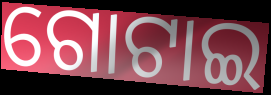
ଗୋଟାଇ